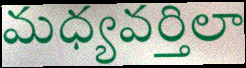
మధ్యవర్తిలా